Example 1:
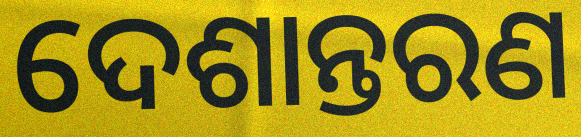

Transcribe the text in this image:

ଦେଶାନ୍ତରଣ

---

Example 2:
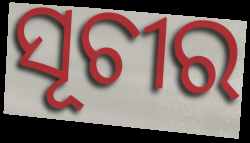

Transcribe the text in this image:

ସୂଚୀର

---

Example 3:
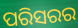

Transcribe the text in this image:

ପରିସରର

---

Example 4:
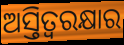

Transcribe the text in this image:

ଅସ୍ତିତ୍ୱରକ୍ଷାର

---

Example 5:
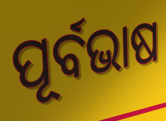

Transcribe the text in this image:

ପୂର୍ବଭାଷ